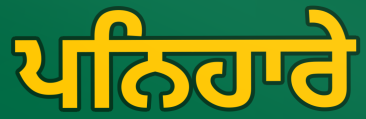
ਪਨਿਹਾਰੇ